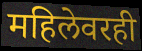
महिलेवरही